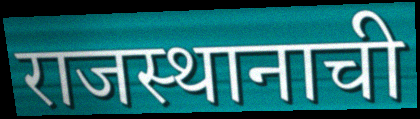
राजस्थानाची